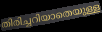
തിരിച്ചറിയാതെയുള്ള